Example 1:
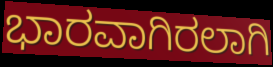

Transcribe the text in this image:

ಭಾರವಾಗಿರಲಾಗಿ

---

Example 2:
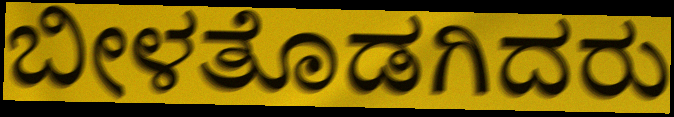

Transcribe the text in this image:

ಬೀಳತೊಡಗಿದರು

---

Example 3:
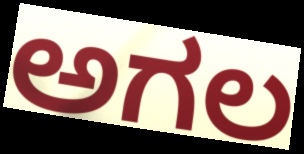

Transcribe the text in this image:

ಅಗಲ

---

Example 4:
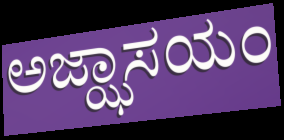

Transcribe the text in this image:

ಅಜ್ಝಾಸಯಂ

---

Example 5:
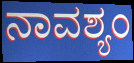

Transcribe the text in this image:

ನಾವಶ್ಯಂ